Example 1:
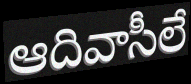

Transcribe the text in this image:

ఆదివాసీలే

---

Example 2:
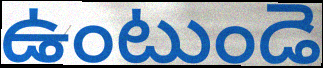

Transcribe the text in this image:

ఉంటుండె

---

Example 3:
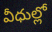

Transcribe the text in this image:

వీధుల్లో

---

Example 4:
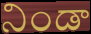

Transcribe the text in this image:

నిండా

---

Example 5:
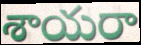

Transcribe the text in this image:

శాయరా